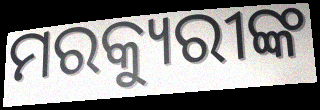
ମରକ୍ୟୁରୀଙ୍କ